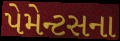
પેમેન્ટસના